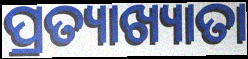
ପ୍ରତ୍ୟାଖ୍ୟାତା